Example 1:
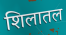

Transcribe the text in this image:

शिलातल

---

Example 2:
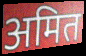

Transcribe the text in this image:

अमित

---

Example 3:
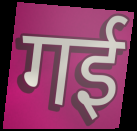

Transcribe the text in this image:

गई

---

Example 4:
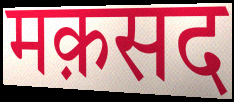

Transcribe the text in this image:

मक़सद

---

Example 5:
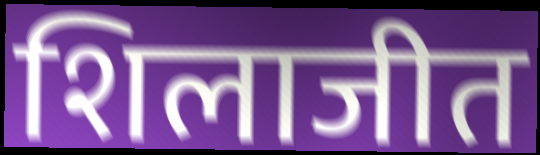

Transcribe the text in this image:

शिलाजीत